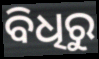
ବିଧିରୁ